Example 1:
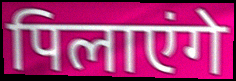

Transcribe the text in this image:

पिलाएंगे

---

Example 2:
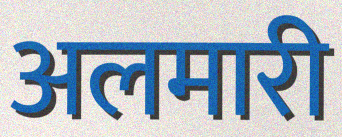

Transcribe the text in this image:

अलमारी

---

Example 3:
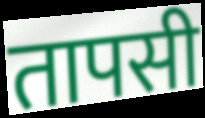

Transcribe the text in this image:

तापसी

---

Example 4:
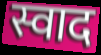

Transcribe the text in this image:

स्‍वाद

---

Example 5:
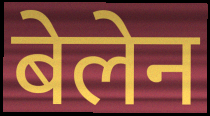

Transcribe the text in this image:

बेलेन